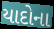
યાદોના